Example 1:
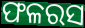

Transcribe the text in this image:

ଫଳରସ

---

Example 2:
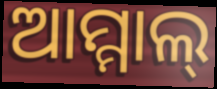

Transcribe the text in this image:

ଆମ୍ମାଲ୍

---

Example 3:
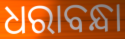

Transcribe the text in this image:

ଧରାବନ୍ଧା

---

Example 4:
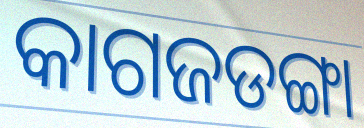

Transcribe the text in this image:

କାଗଜଡଙ୍ଗା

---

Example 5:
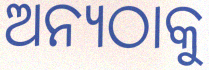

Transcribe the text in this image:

ଅନ୍ୟଠାକୁ